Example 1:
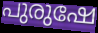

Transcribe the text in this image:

പുരുഷേ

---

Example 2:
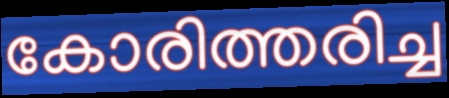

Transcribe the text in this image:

കോരിത്തരിച്ച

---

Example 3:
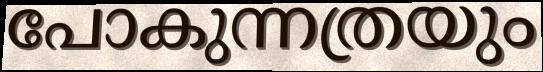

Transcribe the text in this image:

പോകുന്നത്രയും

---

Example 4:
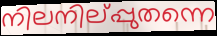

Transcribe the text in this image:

നിലനില്പ്പുതന്നെ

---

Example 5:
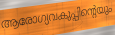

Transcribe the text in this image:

ആരോഗ്യവകുപ്പിന്റെയും